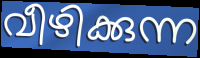
വീഴിക്കുന്ന